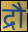
द्रौ